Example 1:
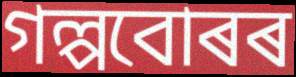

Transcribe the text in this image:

গল্পবোৰৰ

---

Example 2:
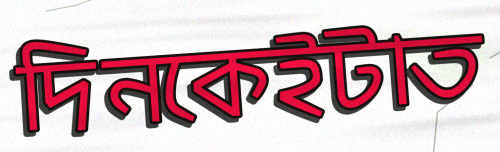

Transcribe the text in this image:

দিনকেইটাত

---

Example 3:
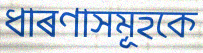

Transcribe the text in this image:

ধাৰণাসমূহকে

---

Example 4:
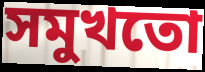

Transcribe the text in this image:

সমুখতো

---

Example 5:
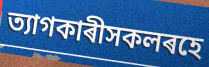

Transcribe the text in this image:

ত্যাগকাৰীসকলৰহে